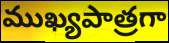
ముఖ్యపాత్రగా